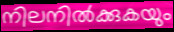
നിലനിൽക്കുകയും